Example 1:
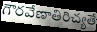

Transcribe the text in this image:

గౌరవేణాతిరిచ్యతే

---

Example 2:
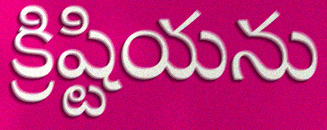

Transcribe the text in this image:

క్రిష్టియను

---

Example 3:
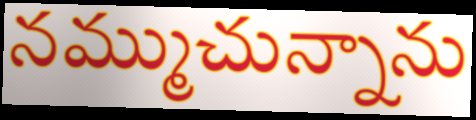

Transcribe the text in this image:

నమ్ముచున్నాను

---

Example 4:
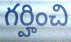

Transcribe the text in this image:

గర్హించి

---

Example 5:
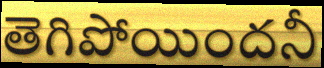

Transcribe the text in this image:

తెగిపోయిందనీ